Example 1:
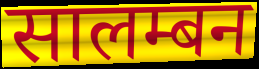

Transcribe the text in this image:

सालम्बन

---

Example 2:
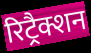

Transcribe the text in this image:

रिट्रैक्शन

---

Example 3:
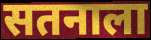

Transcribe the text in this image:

सतनाला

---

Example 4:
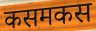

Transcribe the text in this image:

कसमकस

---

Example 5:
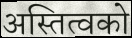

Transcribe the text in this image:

अस्तित्वको